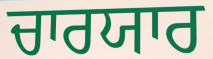
ਚਾਰਯਾਰ